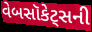
વેબસૉકેટ્સની